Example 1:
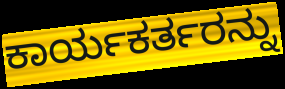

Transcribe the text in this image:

ಕಾರ್ಯಕರ್ತರನ್ನು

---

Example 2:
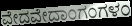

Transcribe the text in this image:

ವೇದವೇದಾಂಗಂಗಳಂ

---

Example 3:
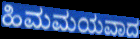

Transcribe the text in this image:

ಹಿಮಮಯವಾದ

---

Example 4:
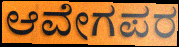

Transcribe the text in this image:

ಆವೇಗಪರ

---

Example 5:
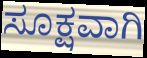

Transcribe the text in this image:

ಸೂಕ್ಷವಾಗಿ